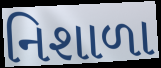
નિશાળા